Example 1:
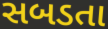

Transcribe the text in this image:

સબડતા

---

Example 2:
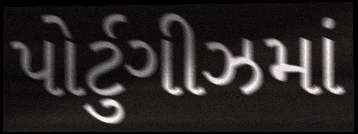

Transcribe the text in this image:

પોર્ટુગીઝમાં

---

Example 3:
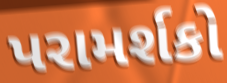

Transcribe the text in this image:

પરામર્શકો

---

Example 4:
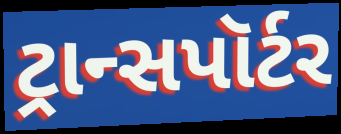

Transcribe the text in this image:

ટ્રાન્સપૉર્ટર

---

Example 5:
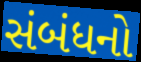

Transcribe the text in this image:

સંબંધનો